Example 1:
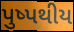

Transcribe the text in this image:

પુષ્પથીય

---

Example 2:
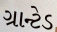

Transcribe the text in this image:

ગ્રાન્ટેડ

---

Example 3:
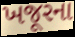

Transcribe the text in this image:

ખજૂરના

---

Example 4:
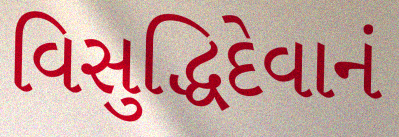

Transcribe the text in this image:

વિસુદ્ધિદેવાનં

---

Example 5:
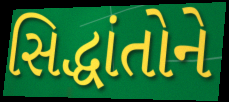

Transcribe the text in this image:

સિદ્ધાંતોને